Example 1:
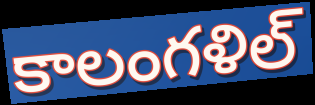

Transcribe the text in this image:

కాలంగళిల్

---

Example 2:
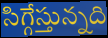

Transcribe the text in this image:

సిగ్గేస్తున్నది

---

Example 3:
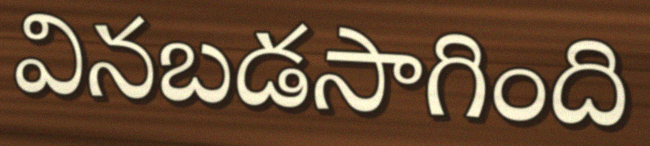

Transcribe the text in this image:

వినబడసాగింది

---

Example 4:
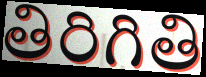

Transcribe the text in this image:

తిరిగితి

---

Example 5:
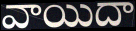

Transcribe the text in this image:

వాయిదా